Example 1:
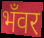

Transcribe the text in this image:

भँवर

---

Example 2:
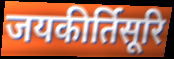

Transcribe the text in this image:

जयकीर्तिसूरि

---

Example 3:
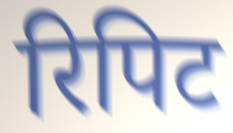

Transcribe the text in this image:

रिपिट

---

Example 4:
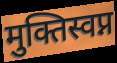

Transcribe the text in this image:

मुक्तिस्वप्न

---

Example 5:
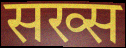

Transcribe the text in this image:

सख्स